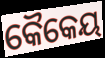
କୈକେୟ